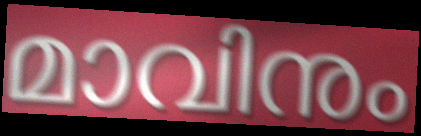
മാവിനും